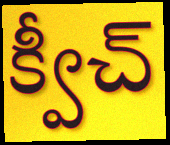
క్వీచ్